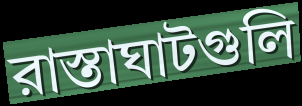
রাস্তাঘাটগুলি